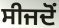
ਸੀਜਦੋਂ